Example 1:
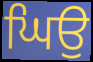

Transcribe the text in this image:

ਘਿਉ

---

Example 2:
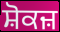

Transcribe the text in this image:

ਸ਼ੋਕਜ਼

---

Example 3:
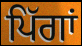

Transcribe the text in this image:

ਪਿੱਗਾਂ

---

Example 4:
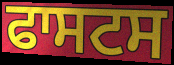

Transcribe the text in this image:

ਫਾਸਟਸ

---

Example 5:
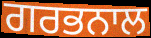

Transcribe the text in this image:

ਗਰਭਨਾਲ